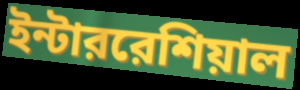
ইন্টাররেশিয়াল